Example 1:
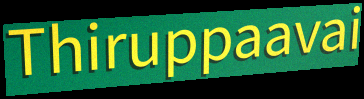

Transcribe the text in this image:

Thiruppaavai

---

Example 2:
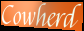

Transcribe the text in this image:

Cowherd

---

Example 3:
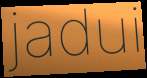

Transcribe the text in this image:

jadui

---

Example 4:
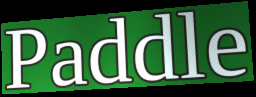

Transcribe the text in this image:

Paddle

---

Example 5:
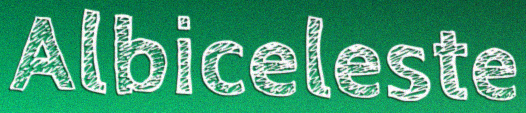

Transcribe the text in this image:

Albiceleste